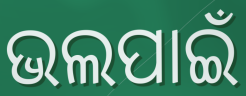
ଭଲପାଇଁ